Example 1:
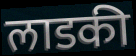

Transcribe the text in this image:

लाडकी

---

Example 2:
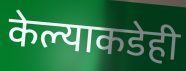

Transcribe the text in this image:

केल्याकडेही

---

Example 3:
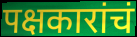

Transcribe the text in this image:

पक्षकारांचं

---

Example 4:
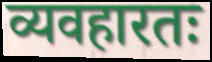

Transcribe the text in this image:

व्यवहारतः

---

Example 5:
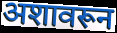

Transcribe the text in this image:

अशावरून